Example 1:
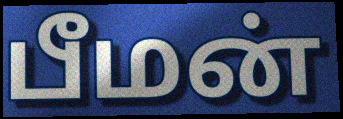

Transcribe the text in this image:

பீமன்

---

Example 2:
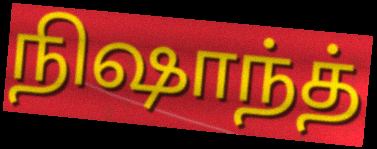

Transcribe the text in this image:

நிஷாந்த்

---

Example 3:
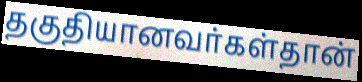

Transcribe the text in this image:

தகுதியானவர்கள்தான்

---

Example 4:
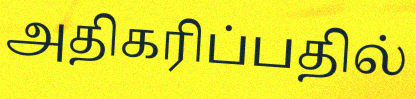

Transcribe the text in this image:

அதிகரிப்பதில்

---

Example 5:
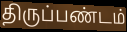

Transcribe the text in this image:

திருப்பண்டம்